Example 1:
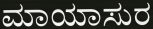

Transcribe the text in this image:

ಮಾಯಾಸುರ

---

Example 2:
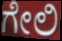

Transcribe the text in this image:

ಗೇಲಿ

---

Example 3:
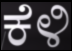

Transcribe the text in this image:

ಕೆಳಿ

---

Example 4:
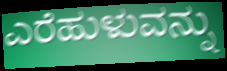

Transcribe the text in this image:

ಎರೆಹುಳುವನ್ನು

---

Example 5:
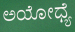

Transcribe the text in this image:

ಅಯೋಧ್ಯೆ